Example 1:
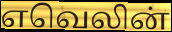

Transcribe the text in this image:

எவெலின்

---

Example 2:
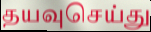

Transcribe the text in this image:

தயவுசெய்து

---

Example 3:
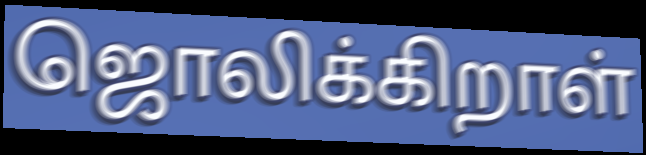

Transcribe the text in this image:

ஜொலிக்கிறாள்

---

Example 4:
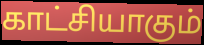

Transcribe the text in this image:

காட்சியாகும்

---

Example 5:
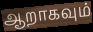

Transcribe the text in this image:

ஆறாகவும்